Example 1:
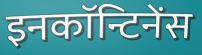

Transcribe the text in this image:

इनकॉन्टिनेंस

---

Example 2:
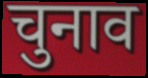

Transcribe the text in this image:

चुनाव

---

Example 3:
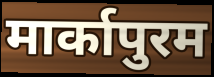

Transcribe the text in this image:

मार्कापुरम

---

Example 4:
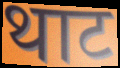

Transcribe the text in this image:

थाट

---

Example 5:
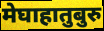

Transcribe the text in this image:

मेघाहातुबुरु